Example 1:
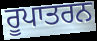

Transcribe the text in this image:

ਰੂਪਾਤਰਨ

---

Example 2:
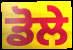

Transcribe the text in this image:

ਡੋਲੇ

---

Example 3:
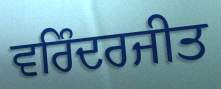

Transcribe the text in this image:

ਵਰਿੰਦਰਜੀਤ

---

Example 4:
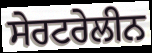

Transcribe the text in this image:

ਸੇਰਟਰੇਲੀਨ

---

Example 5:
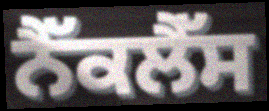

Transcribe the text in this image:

ਨੈੱਕਲੈੱਸ